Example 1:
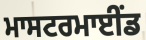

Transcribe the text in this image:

ਮਾਸਟਰਮਾਈੰਡ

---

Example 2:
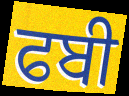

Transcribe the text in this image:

ਫਬੀ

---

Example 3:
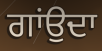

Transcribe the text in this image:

ਗਾਂਉਦਾ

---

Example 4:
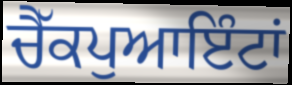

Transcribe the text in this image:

ਚੈੱਕਪੁਆਇੰਟਾਂ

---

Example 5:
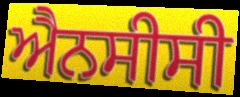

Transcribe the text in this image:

ਐਨਸੀਸੀ